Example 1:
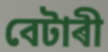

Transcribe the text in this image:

বেটাৰী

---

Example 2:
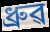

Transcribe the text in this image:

ধ্ৰুৱ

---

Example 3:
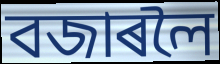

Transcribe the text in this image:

বজাৰলৈ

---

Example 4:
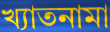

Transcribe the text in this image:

খ্যাতনামা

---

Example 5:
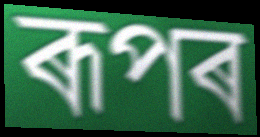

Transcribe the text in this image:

ৰূপৰ